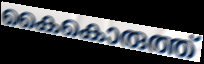
കൈകൊരുത്ത്